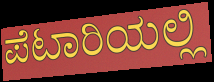
ಪೆಟಾರಿಯಲ್ಲಿ